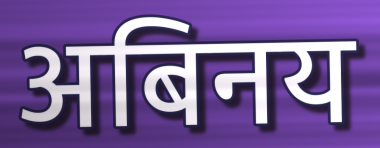
अबिनय